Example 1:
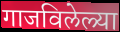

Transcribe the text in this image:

गाजविलेल्या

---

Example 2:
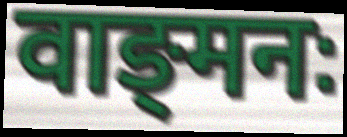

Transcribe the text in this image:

वाङ्मनः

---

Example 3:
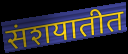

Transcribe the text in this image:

संशयातीत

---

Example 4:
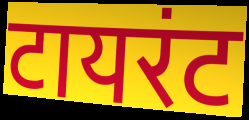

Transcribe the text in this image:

टायरंट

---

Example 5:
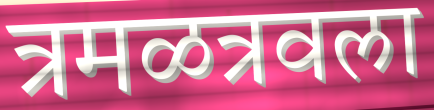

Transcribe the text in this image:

त्रमळत्रवला